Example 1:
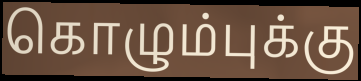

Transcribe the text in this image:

கொழும்புக்கு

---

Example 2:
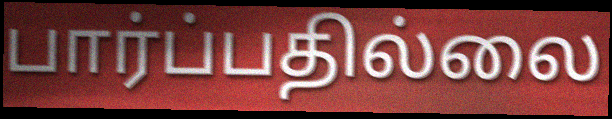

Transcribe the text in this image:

பார்ப்பதில்லை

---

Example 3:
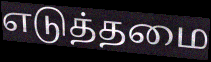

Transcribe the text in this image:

எடுத்தமை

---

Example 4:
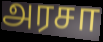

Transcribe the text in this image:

அரசா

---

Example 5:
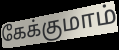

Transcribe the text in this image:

கேக்குமாம்